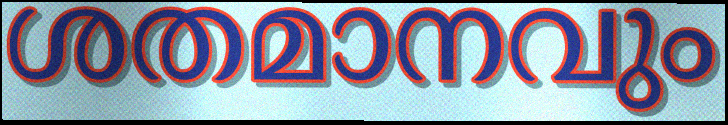
ശതമാനവും